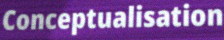
Conceptualisation